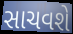
સાચવશે